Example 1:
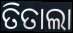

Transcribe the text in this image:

ତିତାଲା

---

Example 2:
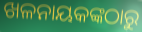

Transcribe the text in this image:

ଖଳନାୟକଙ୍କଠାରୁ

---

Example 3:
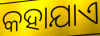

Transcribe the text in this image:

କହାଯାଏ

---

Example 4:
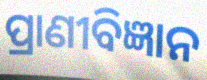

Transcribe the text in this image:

ପ୍ରାଣୀବିଜ୍ଞାନ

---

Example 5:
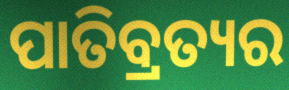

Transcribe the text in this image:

ପାତିବ୍ରତ୍ୟର